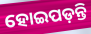
ହୋଇପଡ଼ନ୍ତି